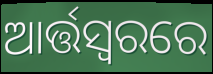
ଆର୍ତ୍ତସ୍ଵରରେ